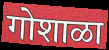
गोशाळा